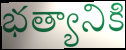
భత్యానికి